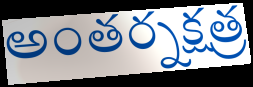
అంతర్నక్షత్ర